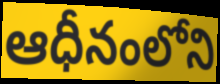
ఆధీనంలోని